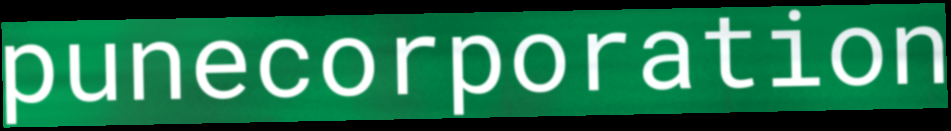
punecorporation